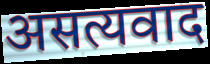
असत्यवाद